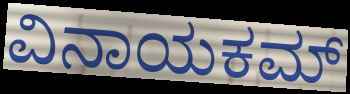
ವಿನಾಯಕಮ್